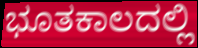
ಭೂತಕಾಲದಲ್ಲಿ